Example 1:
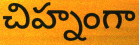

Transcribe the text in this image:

చిహ్నంగా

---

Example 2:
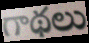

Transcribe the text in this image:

గాథలు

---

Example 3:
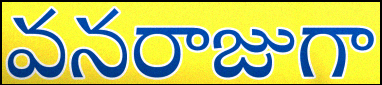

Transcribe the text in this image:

వనరాజుగా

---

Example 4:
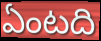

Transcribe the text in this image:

ఏంటది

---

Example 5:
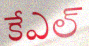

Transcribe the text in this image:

కేఎల్